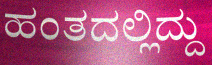
ಹಂತದಲ್ಲಿದ್ದು